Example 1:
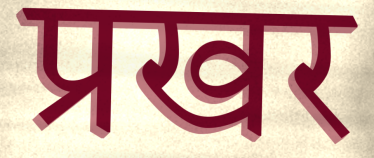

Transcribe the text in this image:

प्रखर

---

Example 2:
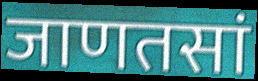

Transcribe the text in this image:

जाणतसां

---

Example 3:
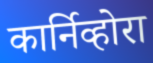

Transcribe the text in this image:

कार्निव्होरा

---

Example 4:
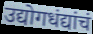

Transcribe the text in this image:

उद्योगधंद्यांचं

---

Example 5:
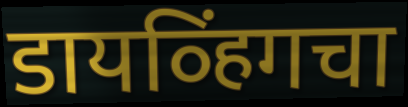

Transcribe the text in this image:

डायव्हिंगचा